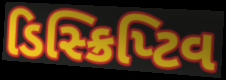
ડિસ્ક્રિપ્ટિવ